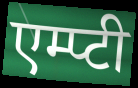
एम्प्टी